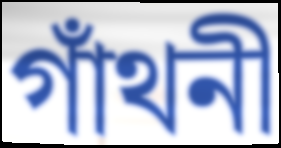
গাঁথনী